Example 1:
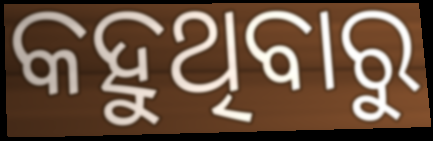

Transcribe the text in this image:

କହୁଥିବାରୁ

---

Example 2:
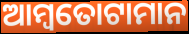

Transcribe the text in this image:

ଆମ୍ବତୋଟାମାନ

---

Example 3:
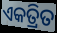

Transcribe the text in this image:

ଏକତ୍ରିତ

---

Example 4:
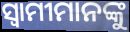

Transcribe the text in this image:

ସ୍ବାମୀମାନଙ୍କୁ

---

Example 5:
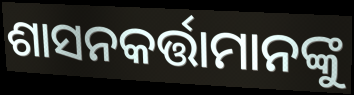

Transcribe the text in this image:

ଶାସନକର୍ତ୍ତାମାନଙ୍କୁ